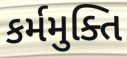
કર્મમુક્તિ